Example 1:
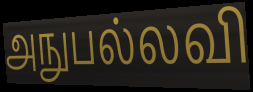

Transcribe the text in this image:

அநுபல்லவி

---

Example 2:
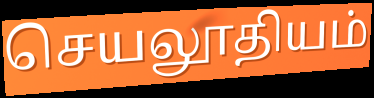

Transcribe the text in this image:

செயலூதியம்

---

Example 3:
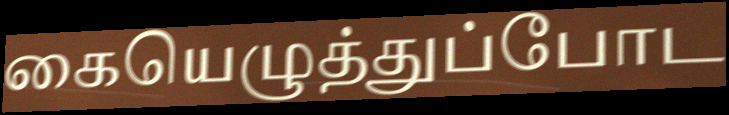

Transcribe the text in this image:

கையெழுத்துப்போட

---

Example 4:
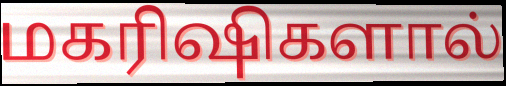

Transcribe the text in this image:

மகரிஷிகளால்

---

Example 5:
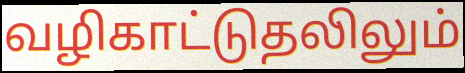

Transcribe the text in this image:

வழிகாட்டுதலிலும்